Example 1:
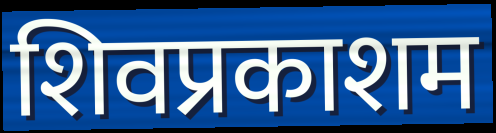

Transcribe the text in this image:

शिवप्रकाशम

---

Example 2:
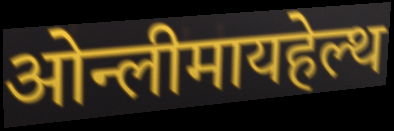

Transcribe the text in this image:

ओन्लीमायहेल्थ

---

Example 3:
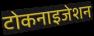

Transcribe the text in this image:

टोकनाइजेशन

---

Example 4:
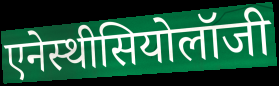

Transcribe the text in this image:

एनेस्थीसियोलॉजी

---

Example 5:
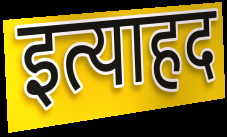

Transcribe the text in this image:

इत्याहद